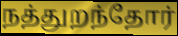
நத்துறந்தோர்